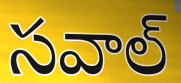
సవాల్